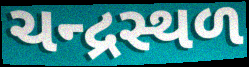
ચન્દ્રસ્થળ